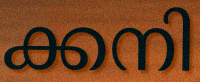
ക്കനി